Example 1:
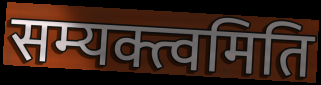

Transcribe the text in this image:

सम्यक्त्वमिति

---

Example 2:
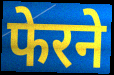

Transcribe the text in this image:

फेरने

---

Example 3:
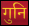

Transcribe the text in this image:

गुनि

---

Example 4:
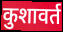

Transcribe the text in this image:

कुशावर्त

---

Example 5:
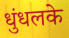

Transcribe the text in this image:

धुंधलके